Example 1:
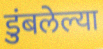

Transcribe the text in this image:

डुंबलेल्या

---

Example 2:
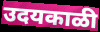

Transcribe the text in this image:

उदयकाळी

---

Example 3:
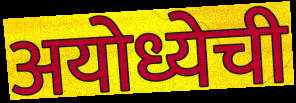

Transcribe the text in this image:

अयोध्येची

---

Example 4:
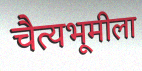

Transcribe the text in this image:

चैत्यभूमीला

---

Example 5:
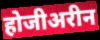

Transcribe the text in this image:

होजीअरीन